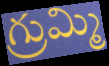
గ్రుమ్మి